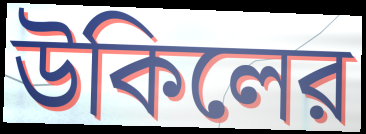
উকিলের